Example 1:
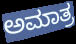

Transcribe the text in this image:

ಅಮಾತ್ರ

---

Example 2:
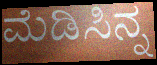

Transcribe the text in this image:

ಮೆಡಿಸಿನ್ನ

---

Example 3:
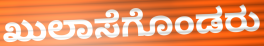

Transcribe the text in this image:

ಖುಲಾಸೆಗೊಂಡರು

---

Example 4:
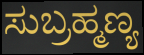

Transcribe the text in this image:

ಸುಬ್ರಹ್ಮಣ್ಯ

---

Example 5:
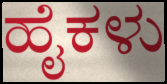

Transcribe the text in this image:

ಹೈಕಳು